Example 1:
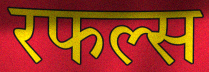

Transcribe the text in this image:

रफल्स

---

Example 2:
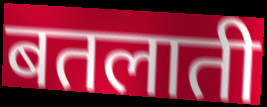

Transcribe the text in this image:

बतलाती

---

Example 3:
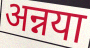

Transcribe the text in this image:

अन्नया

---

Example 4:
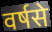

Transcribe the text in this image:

वर्षसे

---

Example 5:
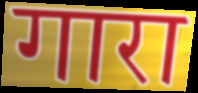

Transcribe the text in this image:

गारा